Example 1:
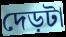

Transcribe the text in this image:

দেড়টা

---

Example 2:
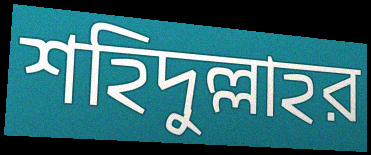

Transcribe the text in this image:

শহিদুল্লাহর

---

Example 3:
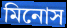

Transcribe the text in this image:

মিনোস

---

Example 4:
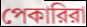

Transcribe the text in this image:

পেকারিরা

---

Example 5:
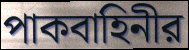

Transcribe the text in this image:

পাকবাহিনীর